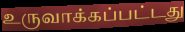
உருவாக்கப்பட்டது